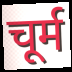
चूर्म